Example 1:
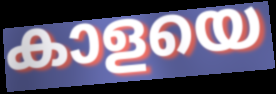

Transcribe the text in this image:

കാളയെ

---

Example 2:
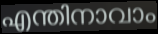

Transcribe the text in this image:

എന്തിനാവാം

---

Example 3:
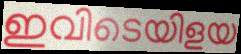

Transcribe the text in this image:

ഇവിടെയിളയ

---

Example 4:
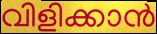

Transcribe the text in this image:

വിളിക്കാൻ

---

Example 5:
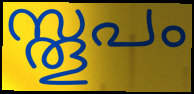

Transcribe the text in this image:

സ്തൂപം